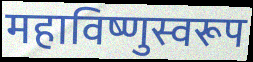
महाविष्णुस्वरूप